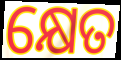
କ୍ଷେତ